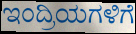
ಇಂದ್ರಿಯಗಳಿಗೆ